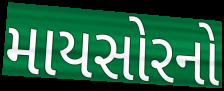
માયસોરનો